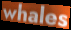
whales